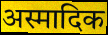
अस्मादिक